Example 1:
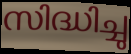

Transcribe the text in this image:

സിദ്ധിച്ചു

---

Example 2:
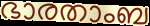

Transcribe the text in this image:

ഭാരതാംബ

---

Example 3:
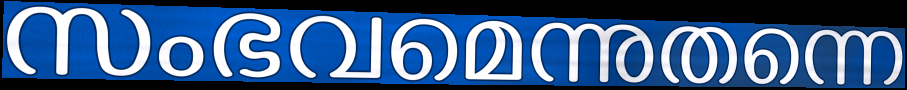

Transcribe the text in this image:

സംഭവമെന്നുതന്നെ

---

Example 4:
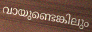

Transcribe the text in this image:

വായുണ്ടെങ്കിലും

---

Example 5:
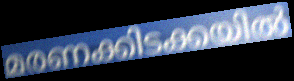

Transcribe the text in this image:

മരണക്കിടക്കയിൽ